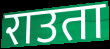
राउता